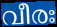
വീരഃ